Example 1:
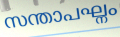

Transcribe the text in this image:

സന്താപഘ്നം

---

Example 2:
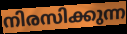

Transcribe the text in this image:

നിരസിക്കുന്ന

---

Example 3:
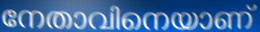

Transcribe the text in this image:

നേതാവിനെയാണ്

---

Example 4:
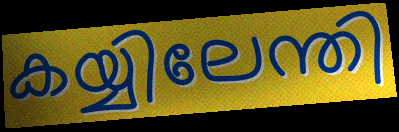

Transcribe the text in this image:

കയ്യിലേന്തി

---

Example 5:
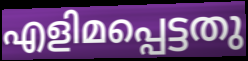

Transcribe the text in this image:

എളിമപ്പെട്ടതു